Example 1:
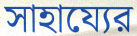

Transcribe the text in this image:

সাহায্যের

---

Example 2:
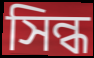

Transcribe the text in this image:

সিন্ধ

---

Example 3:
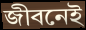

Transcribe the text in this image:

জীবনেই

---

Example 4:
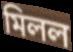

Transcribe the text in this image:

মিলল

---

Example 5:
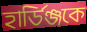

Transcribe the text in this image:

হার্ডিঞ্জকে